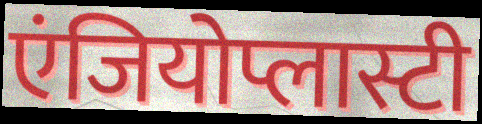
एंजियोप्लास्टी